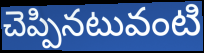
చెప్పినటువంటి